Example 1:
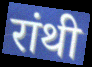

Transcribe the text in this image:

रांथी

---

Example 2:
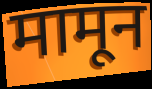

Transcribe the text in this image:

मामून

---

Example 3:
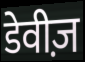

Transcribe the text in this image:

डेवीज़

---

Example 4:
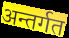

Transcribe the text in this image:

अन्तर्गत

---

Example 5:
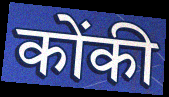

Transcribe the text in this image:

कोंकी